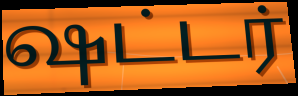
ஷட்டர்